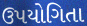
ઉપયોગિતા